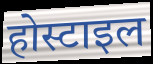
होस्टाइल